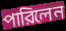
পারিলেন